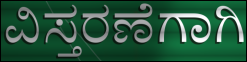
ವಿಸ್ತರಣೆಗಾಗಿ